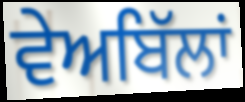
ਵੇਅਬਿੱਲਾਂ